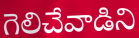
గెలిచేవాడిని